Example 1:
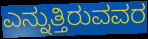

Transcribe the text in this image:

ಎನ್ನುತ್ತಿರುವವರ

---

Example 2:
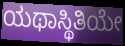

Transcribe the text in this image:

ಯಥಾಸ್ಥಿತಿಯೇ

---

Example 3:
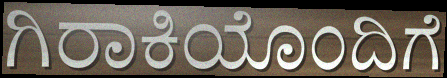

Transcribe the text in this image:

ಗಿರಾಕಿಯೊಂದಿಗೆ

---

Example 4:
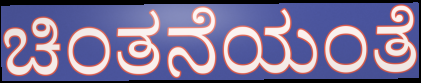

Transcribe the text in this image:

ಚಿಂತನೆಯಂತೆ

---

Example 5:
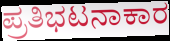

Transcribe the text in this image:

ಪ್ರತಿಭಟನಾಕಾರ